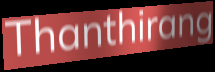
Thanthirang